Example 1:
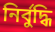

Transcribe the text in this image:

নির্বুদ্ধি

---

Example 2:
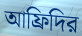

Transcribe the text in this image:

আফ্রিদির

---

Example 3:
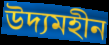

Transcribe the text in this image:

উদ্যমহীন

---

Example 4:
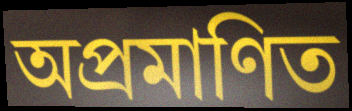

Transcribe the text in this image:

অপ্রমাণিত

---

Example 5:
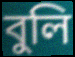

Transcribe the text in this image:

বুলি